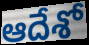
ఆదేశో